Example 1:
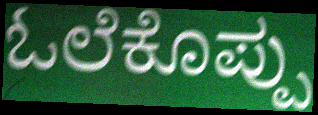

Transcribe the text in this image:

ಓಲೆಕೊಪ್ಪು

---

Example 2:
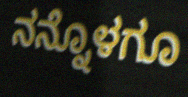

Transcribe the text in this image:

ನನ್ನೊಳಗೂ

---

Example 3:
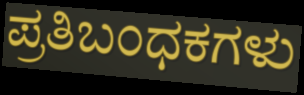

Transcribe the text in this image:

ಪ್ರತಿಬಂಧಕಗಳು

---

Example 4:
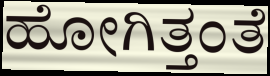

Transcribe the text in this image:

ಹೋಗಿತ್ತಂತೆ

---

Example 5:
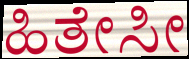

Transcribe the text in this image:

ಹಿತೇಸೀ